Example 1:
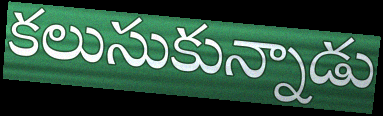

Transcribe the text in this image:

కలుసుకున్నాడు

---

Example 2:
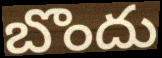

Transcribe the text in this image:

బొందు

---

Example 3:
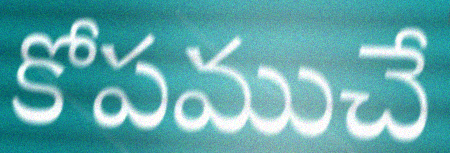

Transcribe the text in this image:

కోపముచే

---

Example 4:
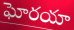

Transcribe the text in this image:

ఘోరయా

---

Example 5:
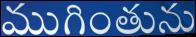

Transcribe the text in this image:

ముగింతును